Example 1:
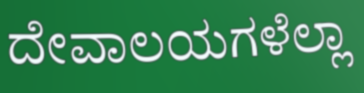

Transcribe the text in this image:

ದೇವಾಲಯಗಳೆಲ್ಲಾ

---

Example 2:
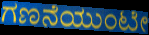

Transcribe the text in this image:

ಗಣನೆಯುಂಟೇ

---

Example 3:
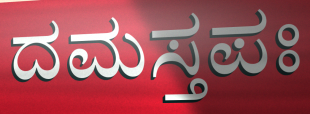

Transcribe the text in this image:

ದಮಸ್ತಪಃ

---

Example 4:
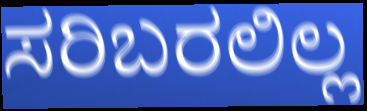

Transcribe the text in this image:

ಸರಿಬರಲಿಲ್ಲ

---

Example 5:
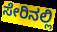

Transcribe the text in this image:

ಸೇರಿನಲ್ಲಿ